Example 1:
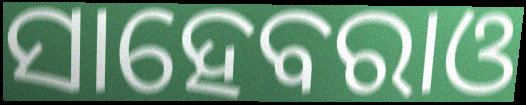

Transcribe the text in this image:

ସାହେବରାଓ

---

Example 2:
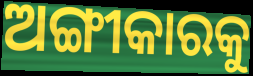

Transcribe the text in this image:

ଅଙ୍ଗୀକାରକୁ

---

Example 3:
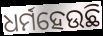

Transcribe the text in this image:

ଧର୍ମହେଉଛି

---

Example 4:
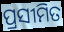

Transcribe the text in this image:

ପ୍ରସୀମିତ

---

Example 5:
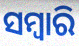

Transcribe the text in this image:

ସମ୍ବାରି